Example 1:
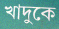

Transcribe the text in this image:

খাদুকে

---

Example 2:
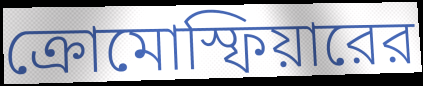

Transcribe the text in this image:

ক্রোমোস্ফিয়ারের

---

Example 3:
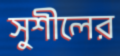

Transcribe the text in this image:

সুশীলের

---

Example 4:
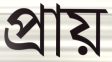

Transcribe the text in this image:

প্রায়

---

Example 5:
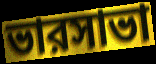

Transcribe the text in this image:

ভারসাভা